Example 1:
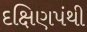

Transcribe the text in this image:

દક્ષિણપંથી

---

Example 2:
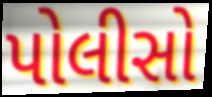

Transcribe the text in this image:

પોલીસો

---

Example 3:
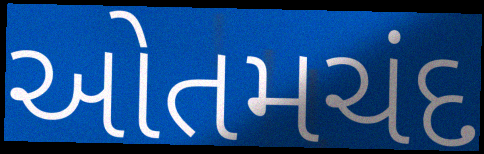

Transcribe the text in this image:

ઓતમચંદ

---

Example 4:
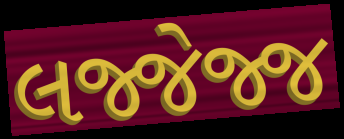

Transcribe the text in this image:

લજ્જેજ્જ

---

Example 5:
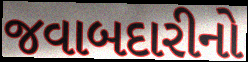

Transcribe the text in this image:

જવાબદારીનો